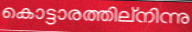
കൊട്ടാരത്തില്നിന്നു